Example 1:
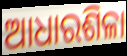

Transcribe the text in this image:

ଆଧାରଶିଳା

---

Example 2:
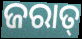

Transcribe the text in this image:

ଜରାତ୍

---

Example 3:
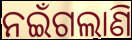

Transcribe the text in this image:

ନଇଁଗଲାଣି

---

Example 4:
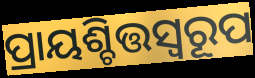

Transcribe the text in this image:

ପ୍ରାୟଶ୍ଚିତ୍ତସ୍ୱରୂପ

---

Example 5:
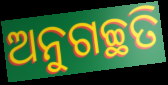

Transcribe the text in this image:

ଅନୁଗଚ୍ଛତି